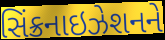
સિંક્રનાઇઝેશનને